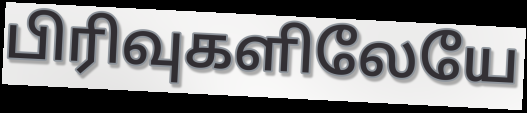
பிரிவுகளிலேயே